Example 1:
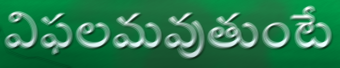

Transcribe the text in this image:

విఫలమవుతుంటే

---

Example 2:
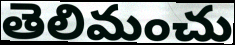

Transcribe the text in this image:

తెలిమంచు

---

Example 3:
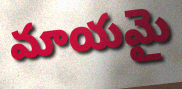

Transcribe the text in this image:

మాయమై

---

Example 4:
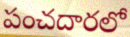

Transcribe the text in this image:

పంచదారలో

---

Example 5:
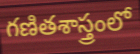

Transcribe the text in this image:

గణితశాస్త్రంలో